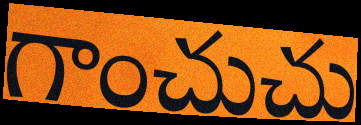
గాంచుచు